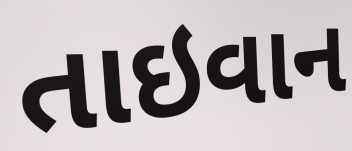
તાઇવાન